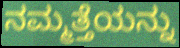
ನಮ್ಮತ್ತೆಯನ್ನು